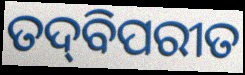
ତଦ୍‍ବିପରୀତ